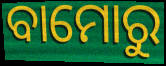
ବାମୋରୁ